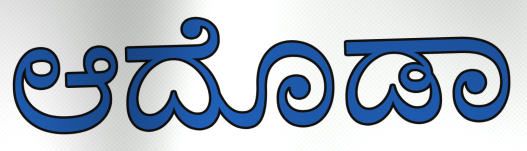
ಆದೊಡಾ